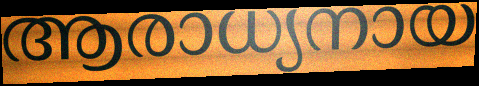
ആരാധ്യനായ